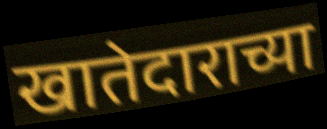
खातेदाराच्या